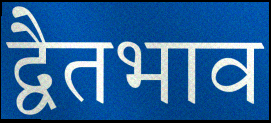
द्वैतभाव